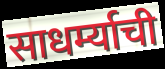
साधर्म्याची